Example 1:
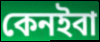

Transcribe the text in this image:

কেনইবা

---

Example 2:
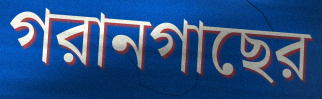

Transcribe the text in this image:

গরানগাছের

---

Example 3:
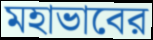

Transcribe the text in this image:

মহাভাবের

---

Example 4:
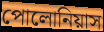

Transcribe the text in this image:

পোলোনিয়াস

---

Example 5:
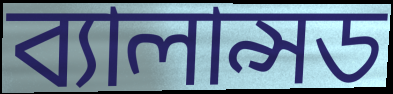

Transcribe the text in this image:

ব্যালান্সড